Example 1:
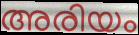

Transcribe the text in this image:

അരിയം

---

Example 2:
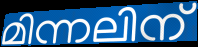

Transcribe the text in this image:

മിന്നലിന്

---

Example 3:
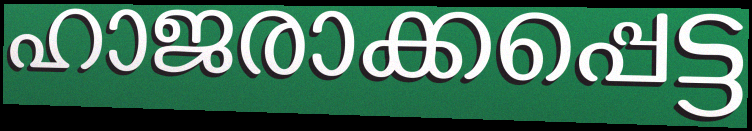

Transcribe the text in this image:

ഹാജരാക്കപ്പെട്ട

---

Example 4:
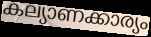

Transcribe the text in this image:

കല്യാണക്കാര്യം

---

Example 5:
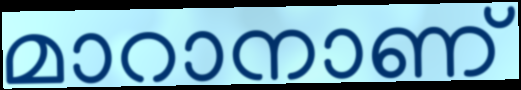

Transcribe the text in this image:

മാറാനാണ്